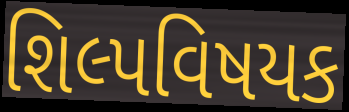
શિલ્પવિષયક